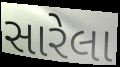
સારેલા